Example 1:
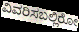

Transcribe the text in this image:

ವಿವರಿಸಬಲ್ಲಿರೋ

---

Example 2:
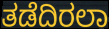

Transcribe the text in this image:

ತಡೆದಿರಲಾ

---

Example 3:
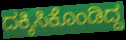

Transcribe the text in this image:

ದಕ್ಕಿಸಿಕೊಂಡಿದ್ದ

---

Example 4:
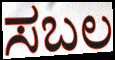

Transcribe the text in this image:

ಸಬಲ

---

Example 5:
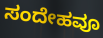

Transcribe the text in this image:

ಸಂದೇಹವೂ